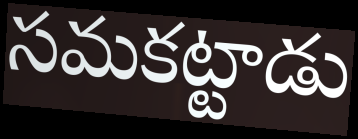
సమకట్టాడు